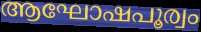
ആഘോഷപൂര്വം